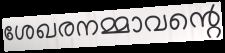
ശേഖരനമ്മാവന്റെ